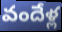
వందేళ్ల